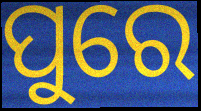
ପୁରେ